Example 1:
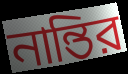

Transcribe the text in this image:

নান্তির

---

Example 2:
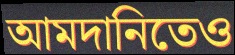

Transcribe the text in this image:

আমদানিতেও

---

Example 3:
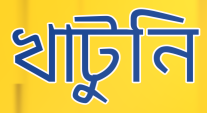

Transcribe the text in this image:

খাটুনি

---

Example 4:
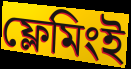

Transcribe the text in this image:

ফ্লেমিংই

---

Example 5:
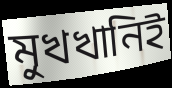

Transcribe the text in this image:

মুখখানিই